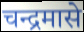
चन्द्रमासे